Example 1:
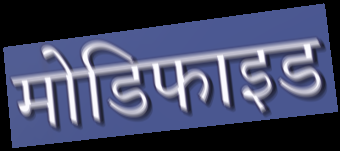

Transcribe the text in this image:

मोडिफाइड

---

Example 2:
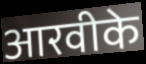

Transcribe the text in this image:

आरवीके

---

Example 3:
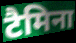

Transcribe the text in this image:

टैमिना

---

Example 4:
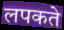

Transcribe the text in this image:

लपकते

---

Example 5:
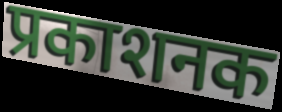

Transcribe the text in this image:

प्रकाशनक